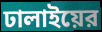
ঢালাইয়ের